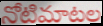
నోటిమాటల